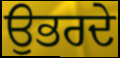
ਉਭਰਦੇ